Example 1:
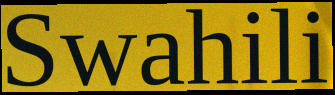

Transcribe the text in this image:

Swahili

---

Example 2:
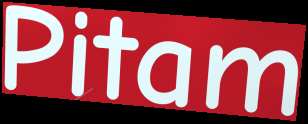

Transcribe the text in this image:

Pitam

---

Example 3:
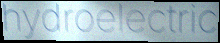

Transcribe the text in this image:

hydroelectric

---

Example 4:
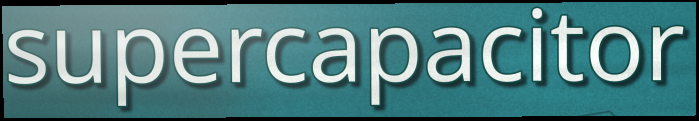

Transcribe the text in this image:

supercapacitor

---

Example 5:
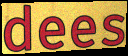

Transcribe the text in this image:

dees